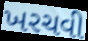
ખરચવી